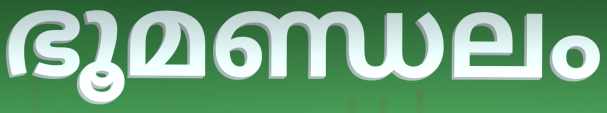
ഭൂമണ്ഡലം